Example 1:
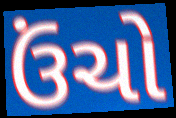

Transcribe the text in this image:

ઉંચો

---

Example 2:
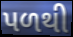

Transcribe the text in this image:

પળથી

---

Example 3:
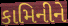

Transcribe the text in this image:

કામિનીને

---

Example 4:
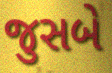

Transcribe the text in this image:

જુસબે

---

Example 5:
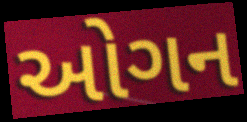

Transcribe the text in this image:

ઓગન